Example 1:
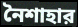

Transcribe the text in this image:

নৈশাহার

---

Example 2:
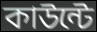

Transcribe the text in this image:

কাউন্টে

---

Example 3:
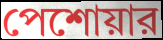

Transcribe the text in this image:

পেশোয়ার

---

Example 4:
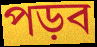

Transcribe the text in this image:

পড়ব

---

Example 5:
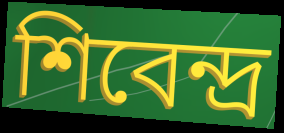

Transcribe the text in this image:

শিবেন্দ্র